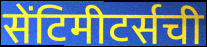
सेंटिमीटर्सची